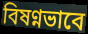
বিষণ্নভাবে